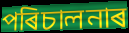
পৰিচালনাৰ